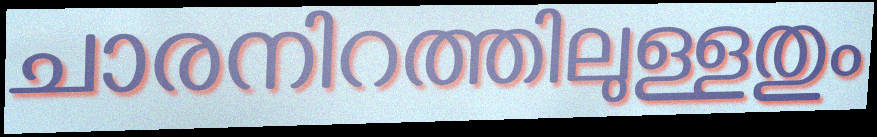
ചാരനിറത്തിലുള്ളതും